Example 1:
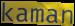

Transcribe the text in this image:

kaman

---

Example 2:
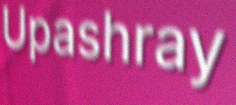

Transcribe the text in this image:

Upashray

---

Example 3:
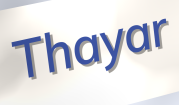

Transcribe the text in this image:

Thayar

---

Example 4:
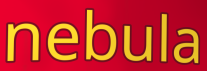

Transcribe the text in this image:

nebula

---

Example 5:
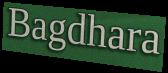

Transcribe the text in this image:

Bagdhara